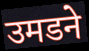
उमडने